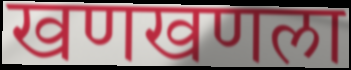
खणखणला